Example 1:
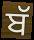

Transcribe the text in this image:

ਬੱ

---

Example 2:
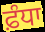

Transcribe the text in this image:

ਫ਼ੰਧਾ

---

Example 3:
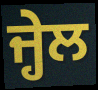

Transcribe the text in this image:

ਜ੍ਹੇਲ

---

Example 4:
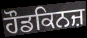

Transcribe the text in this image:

ਹੌਡਕਿਨਜ਼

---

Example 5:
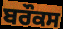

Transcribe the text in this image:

ਬਰੌਕਸ